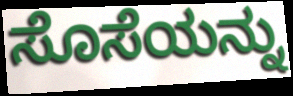
ಸೊಸೆಯನ್ನು